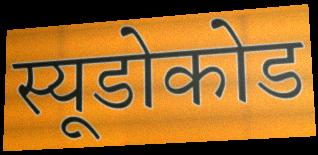
स्यूडोकोड